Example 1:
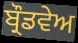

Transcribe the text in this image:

ਬ੍ਰੌਡਵੇਅ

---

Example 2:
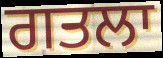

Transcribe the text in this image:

ਗਤਲਾ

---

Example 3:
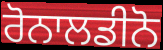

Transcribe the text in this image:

ਰੋਨਾਲਡੀਨੋ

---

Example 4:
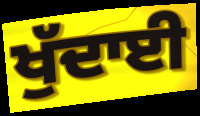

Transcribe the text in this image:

ਖੁੱਦਾਈ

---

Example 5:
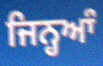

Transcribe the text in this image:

ਜਿਨ੍ਹਆੰ